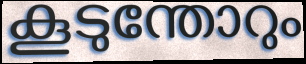
കൂടുന്തോറും